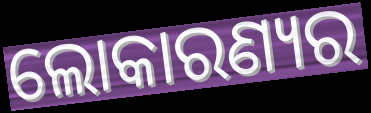
ଲୋକାରଣ୍ୟର